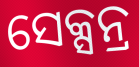
ସେକ୍ସନ୍ର